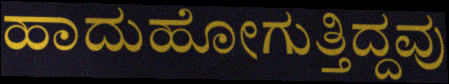
ಹಾದುಹೋಗುತ್ತಿದ್ದವು